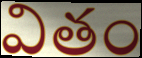
వితం